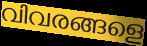
വിവരങ്ങളെ